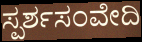
ಸ್ಪರ್ಶಸಂವೇದಿ